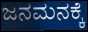
ಜನಮನಕ್ಕೆ